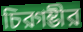
চিরগম্ভীর